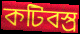
কটিবস্ত্র